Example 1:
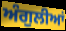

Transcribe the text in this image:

ਅੰਗੁਲੀਆਂ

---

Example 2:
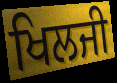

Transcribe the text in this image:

ਖਿਲਜੀ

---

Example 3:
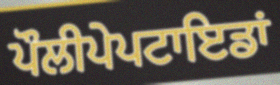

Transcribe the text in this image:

ਪੌਲੀਪੇਪਟਾਇਡਾਂ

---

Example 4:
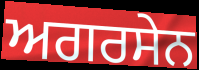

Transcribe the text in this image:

ਅਗਰਸੇਨ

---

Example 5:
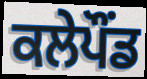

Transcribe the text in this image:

ਕਲੇਪੌਂਡ